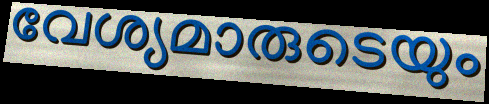
വേശ്യമാരുടെയും